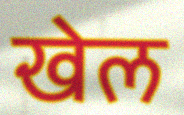
खेल